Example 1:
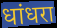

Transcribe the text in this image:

धांधरा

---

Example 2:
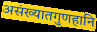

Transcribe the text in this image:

असंख्यातगुणहानि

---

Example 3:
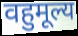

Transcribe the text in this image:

वहुमूल्य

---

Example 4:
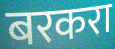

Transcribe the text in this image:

बरकरा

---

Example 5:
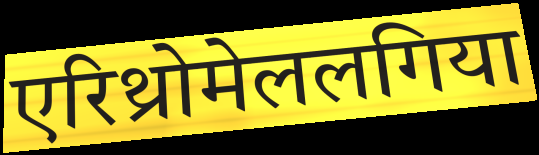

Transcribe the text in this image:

एरिथ्रोमेललगिया